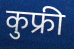
कुफ्री